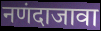
नणंदाजावा